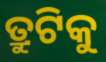
ତ୍ରୁଟିକୁ